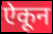
ऐकून